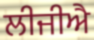
ਲੀਜੀਐ